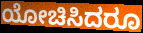
ಯೋಚಿಸಿದರೂ